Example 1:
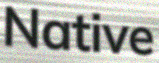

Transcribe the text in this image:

Native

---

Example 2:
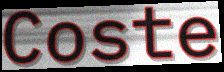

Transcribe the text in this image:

Coste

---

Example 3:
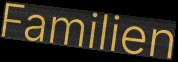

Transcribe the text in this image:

Familien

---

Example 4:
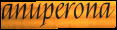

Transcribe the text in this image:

anuperona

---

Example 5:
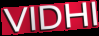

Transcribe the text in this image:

VIDHI